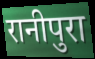
रानीपुरा